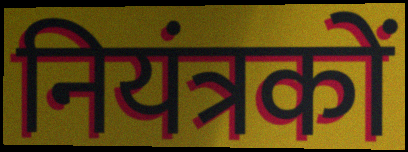
नियंत्रकों